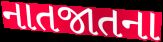
નાતજાતના